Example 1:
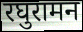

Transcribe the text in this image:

रघुरामन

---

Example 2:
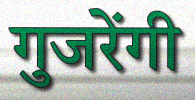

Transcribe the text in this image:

गुजरेंगी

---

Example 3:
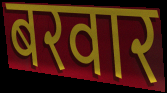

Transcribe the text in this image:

बरवार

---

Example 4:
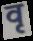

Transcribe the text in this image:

वृ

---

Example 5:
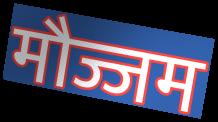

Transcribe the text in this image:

मौज्जम